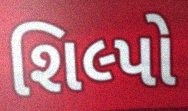
શિલ્પો